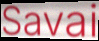
Savai